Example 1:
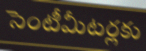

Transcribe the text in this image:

సెంటీమీటర్లకు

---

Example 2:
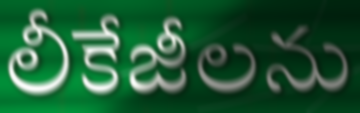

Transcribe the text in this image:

లీకేజీలను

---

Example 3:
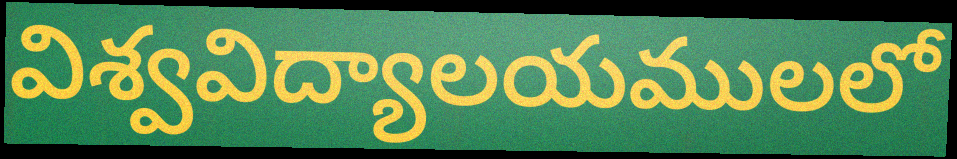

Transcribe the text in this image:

విశ్వవిద్యాలయములలో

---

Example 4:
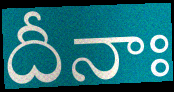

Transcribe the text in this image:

దీనాః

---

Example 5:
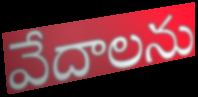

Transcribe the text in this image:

వేదాలను